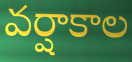
వర్షాకాల